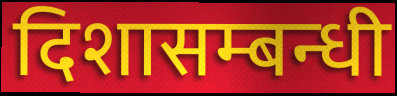
दिशासम्बन्धी